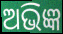
ଅଭିଜ୍ଞ